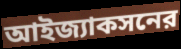
আইজ্যাকসনের